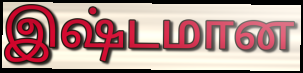
இஷ்டமான